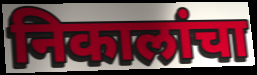
निकालांचा